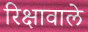
रिक्षावाले